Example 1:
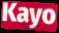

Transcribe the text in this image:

Kayo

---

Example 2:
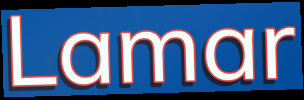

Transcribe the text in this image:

Lamar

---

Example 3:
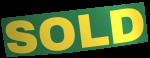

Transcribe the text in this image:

SOLD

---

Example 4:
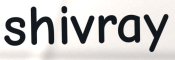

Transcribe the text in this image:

shivray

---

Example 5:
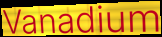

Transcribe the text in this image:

Vanadium